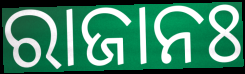
ରାଜାନଃ